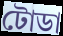
টোডা